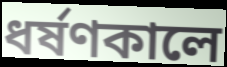
ধর্ষণকালে